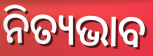
ନିତ୍ୟଭାବ